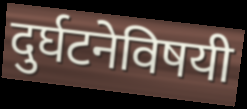
दुर्घटनेविषयी